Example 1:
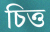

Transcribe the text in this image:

চিত্ত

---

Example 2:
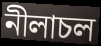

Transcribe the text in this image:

নীলাচল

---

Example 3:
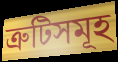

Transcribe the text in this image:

ত্ৰুটিসমূহ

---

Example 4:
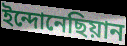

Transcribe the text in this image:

ইন্দোনেছিয়ান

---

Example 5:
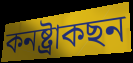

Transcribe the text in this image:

কনষ্ট্ৰাকছন